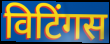
विटिंगस